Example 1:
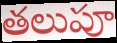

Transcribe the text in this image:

తలుపూ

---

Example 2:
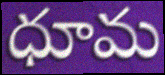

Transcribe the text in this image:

ధూమ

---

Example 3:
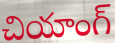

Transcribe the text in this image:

చియాంగ్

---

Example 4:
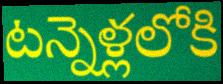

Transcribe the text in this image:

టన్నెళ్లలోకి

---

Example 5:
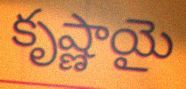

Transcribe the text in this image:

కృష్ణాయై